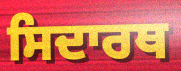
ਸਿਦਾਰਥ